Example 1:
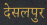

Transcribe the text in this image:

देसलपुर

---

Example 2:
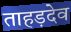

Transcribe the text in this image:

ताहड़देव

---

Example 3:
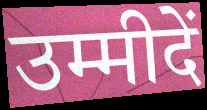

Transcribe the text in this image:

उम्‍मीदें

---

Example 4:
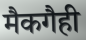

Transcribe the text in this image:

मैकगैही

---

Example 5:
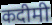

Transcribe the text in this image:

कदीमी